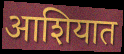
आशियात